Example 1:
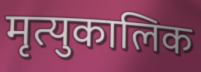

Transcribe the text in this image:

मृत्युकालिक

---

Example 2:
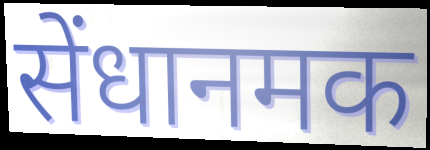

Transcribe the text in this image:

सेंधानमक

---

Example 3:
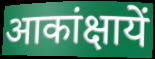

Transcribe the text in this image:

आकांक्षायें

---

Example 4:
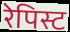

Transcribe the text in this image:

रेपिस्ट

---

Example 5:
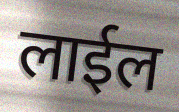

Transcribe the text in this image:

लाईल